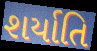
શર્યાતિ